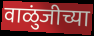
वाळुंजीच्या